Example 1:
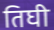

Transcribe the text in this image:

तिघी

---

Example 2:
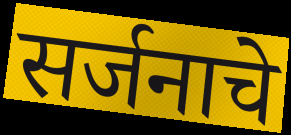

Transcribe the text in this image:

सर्जनाचे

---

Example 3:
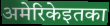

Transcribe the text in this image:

अमेरिकेइतका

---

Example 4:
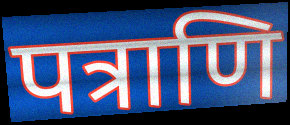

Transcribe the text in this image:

पत्राणि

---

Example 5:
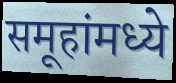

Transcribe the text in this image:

समूहांमध्ये